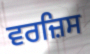
ਵਰਜ਼ਿਸ